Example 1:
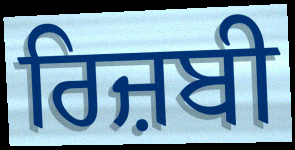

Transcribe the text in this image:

ਰਿਜ਼ਬੀ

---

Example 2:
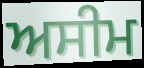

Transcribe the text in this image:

ਅਸੀਮ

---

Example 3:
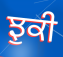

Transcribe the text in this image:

ਝੁਕੀ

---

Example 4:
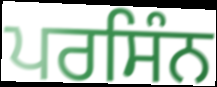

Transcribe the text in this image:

ਪਰਸਿੰਨ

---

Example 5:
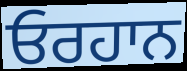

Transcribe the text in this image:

ਓਰਹਾਨ